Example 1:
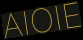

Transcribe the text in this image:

AIOIE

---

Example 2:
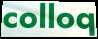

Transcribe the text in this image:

colloq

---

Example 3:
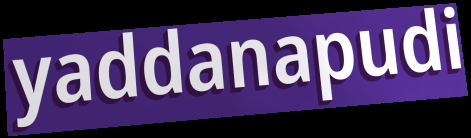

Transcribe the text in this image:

yaddanapudi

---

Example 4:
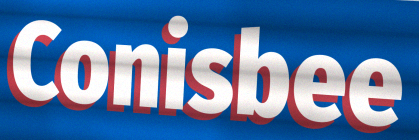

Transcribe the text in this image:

Conisbee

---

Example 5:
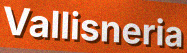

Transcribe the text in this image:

Vallisneria